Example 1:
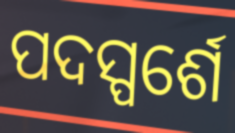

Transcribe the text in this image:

ପଦସ୍ପର୍ଶେ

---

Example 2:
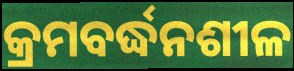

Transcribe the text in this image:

କ୍ରମବର୍ଦ୍ଧନଶୀଳ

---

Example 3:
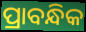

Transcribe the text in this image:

ପ୍ରାବନ୍ଧିକ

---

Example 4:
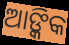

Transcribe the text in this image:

ଆଙ୍କିକ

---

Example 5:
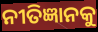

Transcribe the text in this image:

ନୀତିଜ୍ଞାନକୁ